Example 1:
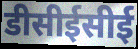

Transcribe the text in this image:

डीसीईसीई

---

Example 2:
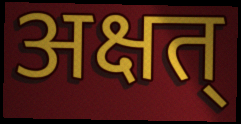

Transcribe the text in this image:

अक्षत्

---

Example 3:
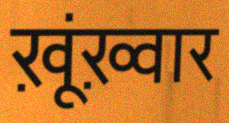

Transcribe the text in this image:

ख़ूंख़्वार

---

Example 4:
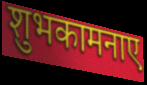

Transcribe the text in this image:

शुभकामनाए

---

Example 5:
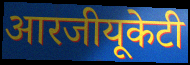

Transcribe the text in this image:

आरजीयूकेटी